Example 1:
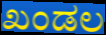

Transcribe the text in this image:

ಖಂಡಲ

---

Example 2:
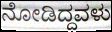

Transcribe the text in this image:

ನೋಡಿದ್ದವಳು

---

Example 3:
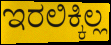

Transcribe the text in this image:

ಇರಲಿಕ್ಕಿಲ್ಲ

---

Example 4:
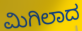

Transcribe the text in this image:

ಮಿಗಿಲಾದ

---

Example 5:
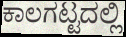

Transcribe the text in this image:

ಕಾಲಗಟ್ಟದಲ್ಲಿ